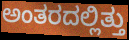
ಅಂತರದಲ್ಲಿತ್ತು